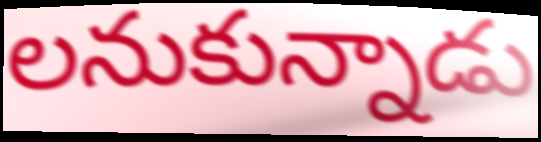
లనుకున్నాడు